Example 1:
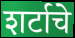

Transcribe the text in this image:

शर्टाचे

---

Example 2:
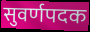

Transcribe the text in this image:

सुवर्णपदक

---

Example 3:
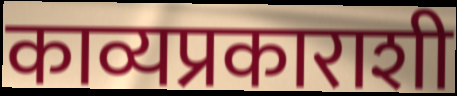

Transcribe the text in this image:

काव्यप्रकाराशी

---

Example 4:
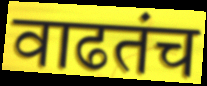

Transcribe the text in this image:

वाढतंच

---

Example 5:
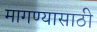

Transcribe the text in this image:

मागण्यासाठी